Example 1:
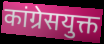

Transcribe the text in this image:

कांग्रेसयुक्त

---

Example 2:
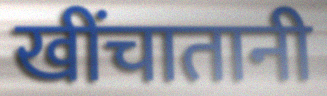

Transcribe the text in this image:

खींचातानी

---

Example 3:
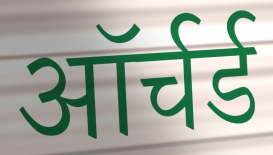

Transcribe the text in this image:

ऑर्चर्ड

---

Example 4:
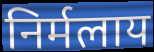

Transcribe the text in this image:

निर्मलाय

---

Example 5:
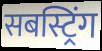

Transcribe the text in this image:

सबस्ट्रिंग